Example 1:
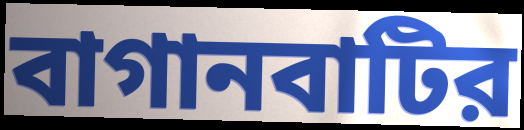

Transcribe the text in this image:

বাগানবাটির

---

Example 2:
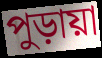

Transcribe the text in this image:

পুড়ায়া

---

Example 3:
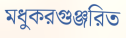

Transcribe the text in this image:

মধুকরগুঞ্জরিত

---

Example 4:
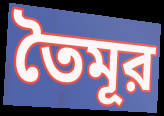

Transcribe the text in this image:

তৈমূর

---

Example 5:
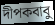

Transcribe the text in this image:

দীপকবাবু